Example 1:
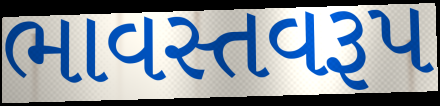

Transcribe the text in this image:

ભાવસ્તવરૂપ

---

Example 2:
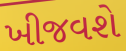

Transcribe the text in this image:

ખીજવશે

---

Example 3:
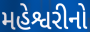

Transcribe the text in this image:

મહેશ્વરીનો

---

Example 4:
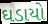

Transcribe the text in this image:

ઘડાયો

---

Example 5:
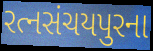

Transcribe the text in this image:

રત્નસંચયપુરના